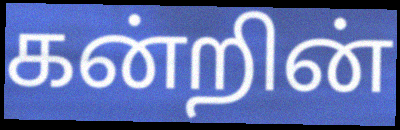
கன்றின்